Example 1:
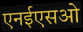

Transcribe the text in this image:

एनईएसओ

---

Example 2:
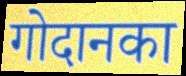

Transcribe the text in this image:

गोदानका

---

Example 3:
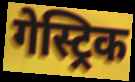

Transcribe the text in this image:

गेस्ट्रिक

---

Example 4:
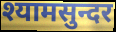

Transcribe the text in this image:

श्यामसुन्दर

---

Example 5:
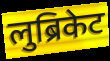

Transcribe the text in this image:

लुब्रिकेट